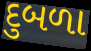
દુબળા